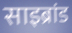
साइब्रांड